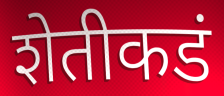
शेतीकडं